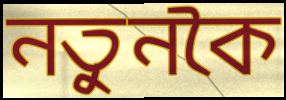
নতুনকৈ